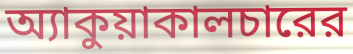
অ্যাকুয়াকালচারের